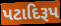
પટાદિરૂપ